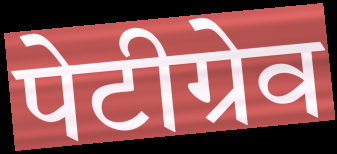
पेटीग्रेव